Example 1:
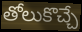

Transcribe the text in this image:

తోలుకొచ్చే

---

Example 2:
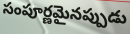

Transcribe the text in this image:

సంపూర్ణమైనప్పుడు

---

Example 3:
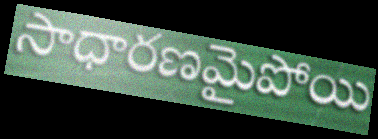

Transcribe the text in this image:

సాధారణమైపోయి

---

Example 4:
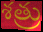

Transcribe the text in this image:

శత్రు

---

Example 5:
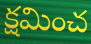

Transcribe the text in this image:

క్షమించ